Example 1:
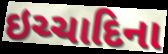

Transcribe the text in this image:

ઇચ્ચાદિના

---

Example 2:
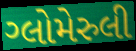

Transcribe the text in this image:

ગ્લોમેરુલી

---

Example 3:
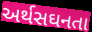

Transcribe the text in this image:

અર્થસઘનતા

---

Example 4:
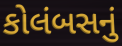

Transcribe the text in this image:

કોલંબસનું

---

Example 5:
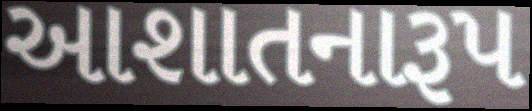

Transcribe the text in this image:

આશાતનારૂપ